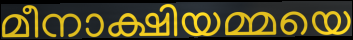
മീനാക്ഷിയമ്മയെ